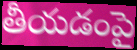
తీయడంపై